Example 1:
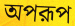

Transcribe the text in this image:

অপরূপ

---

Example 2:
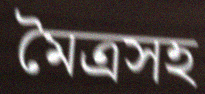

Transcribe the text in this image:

মৈত্রসহ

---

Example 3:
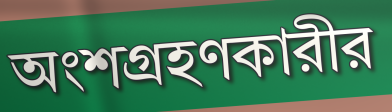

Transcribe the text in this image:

অংশগ্রহণকারীর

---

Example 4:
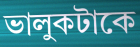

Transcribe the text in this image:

ভালুকটাকে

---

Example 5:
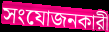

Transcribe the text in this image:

সংযোজনকারী